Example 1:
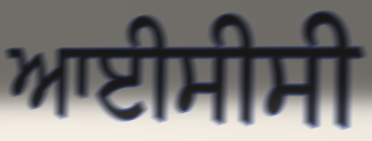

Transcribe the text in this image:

ਆਈਸੀਸੀ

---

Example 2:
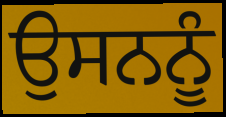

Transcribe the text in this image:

ਉਸਨਨੂੰ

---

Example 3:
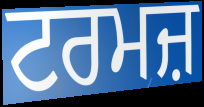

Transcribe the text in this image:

ਟਰਮਜ਼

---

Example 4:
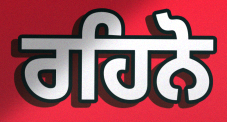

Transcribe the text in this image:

ਰਹਿਨੋ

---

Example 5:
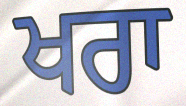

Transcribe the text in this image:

ਖਰਾ